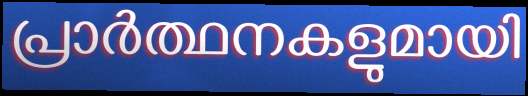
പ്രാർത്ഥനകളുമായി